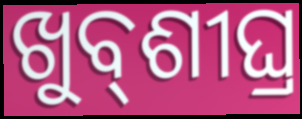
ଖୁବ୍‌ଶୀଘ୍ର